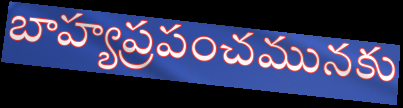
బాహ్యప్రపంచమునకు